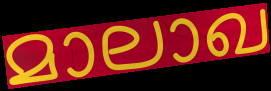
മാലാഖ